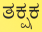
ತಕ್ಷಕ